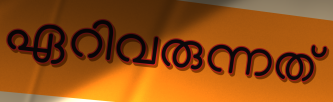
ഏറിവരുന്നത്